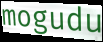
mogudu